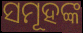
ସମୂହଙ୍କ